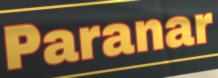
Paranar